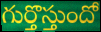
గుర్తొస్తుందో